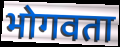
भोगवता